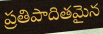
ప్రతిపాదితమైన